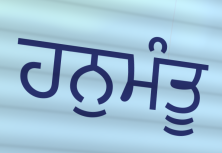
ਹਨੁਮੰਤੂ